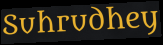
Suhrudhey